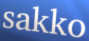
sakko